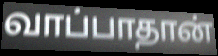
வாப்பாதான்